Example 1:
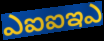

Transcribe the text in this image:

ఎఐఐఇఎ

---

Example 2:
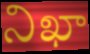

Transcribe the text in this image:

నిఖా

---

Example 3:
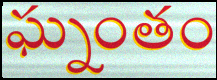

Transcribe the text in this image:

ఘ్నంతం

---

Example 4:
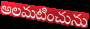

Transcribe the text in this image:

అలమటించును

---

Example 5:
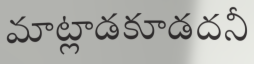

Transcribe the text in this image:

మాట్లాడకూడదనీ